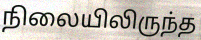
நிலையிலிருந்த